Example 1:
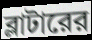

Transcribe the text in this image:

ব্লাটারের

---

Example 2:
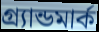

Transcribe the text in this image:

গ্র্যান্ডমার্ক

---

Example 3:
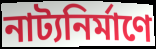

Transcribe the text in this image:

নাট্যনির্মাণে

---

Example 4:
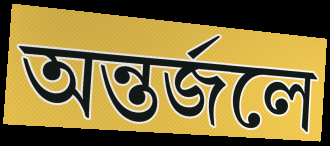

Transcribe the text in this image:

অন্তর্জলে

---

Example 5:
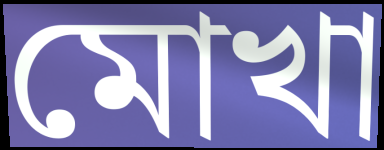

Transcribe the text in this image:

মোখা